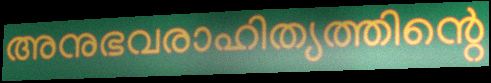
അനുഭവരാഹിത്യത്തിന്റെ